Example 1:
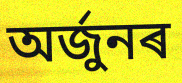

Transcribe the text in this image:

অৰ্জুনৰ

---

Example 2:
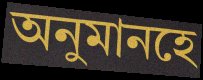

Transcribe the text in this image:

অনুমানহে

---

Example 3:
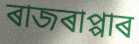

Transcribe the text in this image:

ৰাজৰাপ্পাৰ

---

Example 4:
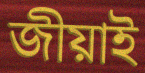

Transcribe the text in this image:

জীয়াই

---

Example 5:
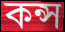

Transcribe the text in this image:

কন্স